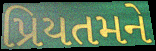
પ્રિયતમને